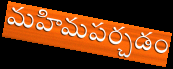
మహిమపర్చడం